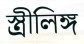
স্ত্ৰীলিঙ্গ